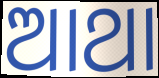
ଆଥା